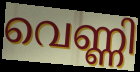
വെണ്ണി